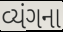
વ્યંગના